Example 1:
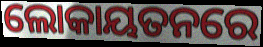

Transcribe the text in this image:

ଲୋକାୟତନରେ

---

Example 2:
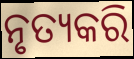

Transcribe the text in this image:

ନୃତ୍ୟକରି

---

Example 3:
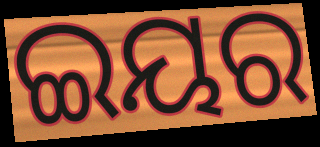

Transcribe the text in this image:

ଇୟର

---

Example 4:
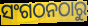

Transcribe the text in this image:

ସଂଗଠନଠାରୁ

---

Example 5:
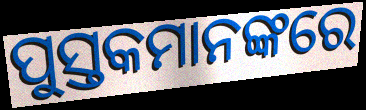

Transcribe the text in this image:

ପୁସ୍ତକମାନଙ୍କରେ